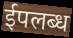
ईपलब्ध